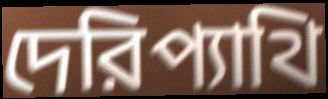
দেরিপ্যাথি